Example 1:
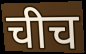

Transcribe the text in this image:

चीच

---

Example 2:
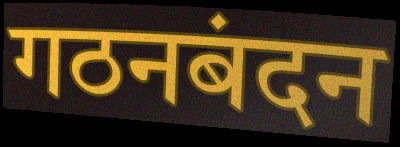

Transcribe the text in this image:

गठनबंदन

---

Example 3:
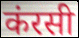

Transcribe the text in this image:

कंरसी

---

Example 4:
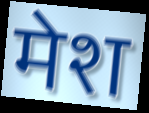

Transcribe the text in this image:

मेश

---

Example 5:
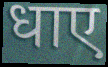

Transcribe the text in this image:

धाए